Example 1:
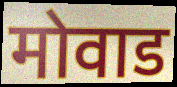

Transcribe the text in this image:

मोवाड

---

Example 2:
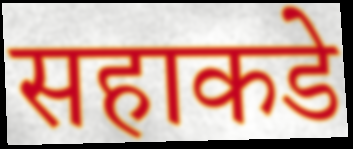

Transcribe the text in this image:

सहाकडे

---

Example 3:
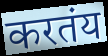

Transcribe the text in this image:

करतंय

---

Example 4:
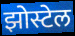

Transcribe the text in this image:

झोस्टेल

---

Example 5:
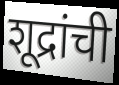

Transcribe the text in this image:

शूद्रांची